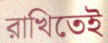
রাখিতেই